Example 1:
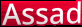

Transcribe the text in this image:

Assad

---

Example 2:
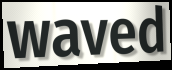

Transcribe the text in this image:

waved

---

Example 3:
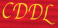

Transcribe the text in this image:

CDDL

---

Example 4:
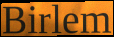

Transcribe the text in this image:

Birlem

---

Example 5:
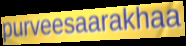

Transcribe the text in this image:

purveesaarakhaa